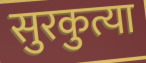
सुरकुत्या